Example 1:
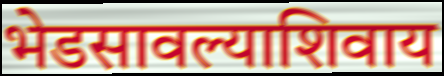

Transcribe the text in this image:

भेडसावल्याशिवाय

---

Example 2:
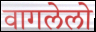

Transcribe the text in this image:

वागलेलो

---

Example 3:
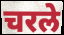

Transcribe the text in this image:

चरले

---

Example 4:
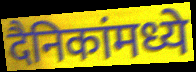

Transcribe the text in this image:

दैनिकांमध्ये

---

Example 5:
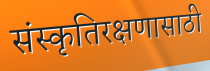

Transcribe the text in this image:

संस्कृतिरक्षणासाठी